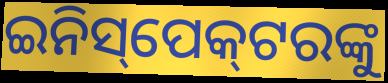
ଇନିସ୍‌ପେକ୍‍ଟରଙ୍କୁ